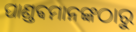
ପାଣ୍ଡଵମାନଙ୍କଠାରୁ